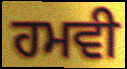
ਹਮਵੀ